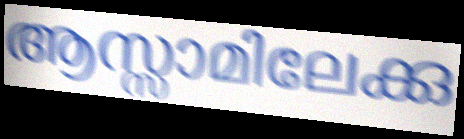
ആസ്സാമിലേക്കു